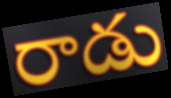
రాడు